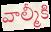
వాల్మీకి